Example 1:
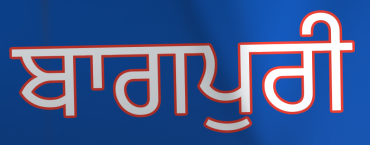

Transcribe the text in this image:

ਬਾਗਪੁਰੀ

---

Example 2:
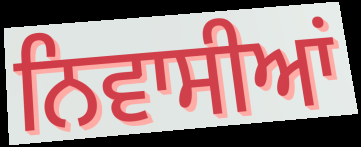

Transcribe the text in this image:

ਨਿਵਾਸੀਆਂ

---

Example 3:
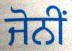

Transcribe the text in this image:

ਜੋਨੀਂ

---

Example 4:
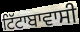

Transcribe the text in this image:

ਟਿੱਟਾਬਾਵਾਸੀ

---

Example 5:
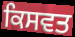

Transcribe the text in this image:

ਕਿਸਵਤ